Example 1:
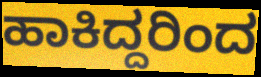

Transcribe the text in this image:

ಹಾಕಿದ್ದರಿಂದ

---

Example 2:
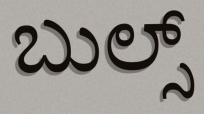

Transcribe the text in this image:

ಬುಲ್ಸ್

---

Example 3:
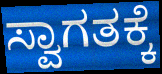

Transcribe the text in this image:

ಸ್ವಾಗತಕ್ಕೆ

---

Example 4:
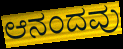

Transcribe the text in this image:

ಆನಂದವು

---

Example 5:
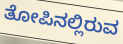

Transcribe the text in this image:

ತೋಪಿನಲ್ಲಿರುವ